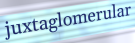
juxtaglomerular